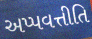
અપ્પવત્તીતિ